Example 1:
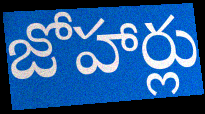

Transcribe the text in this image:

జోహార్లు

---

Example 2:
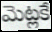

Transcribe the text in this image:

మెట్లకే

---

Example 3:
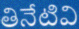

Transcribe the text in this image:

తినేటివి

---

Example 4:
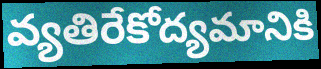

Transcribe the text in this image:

వ్యతిరేకోద్యమానికి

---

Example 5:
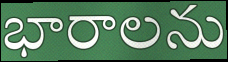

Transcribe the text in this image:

భారాలను